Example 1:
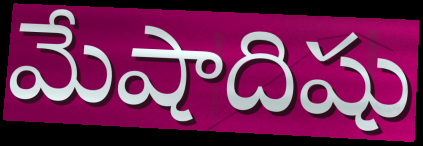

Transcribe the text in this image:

మేషాదిషు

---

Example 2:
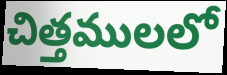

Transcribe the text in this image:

చిత్తములలో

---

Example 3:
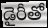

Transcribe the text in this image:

డైరీతో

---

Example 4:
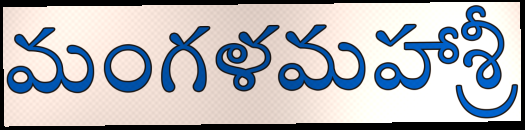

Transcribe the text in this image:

మంగళమహాశ్రీ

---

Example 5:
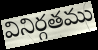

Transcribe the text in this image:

వినిర్గతము